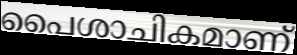
പൈശാചികമാണ്